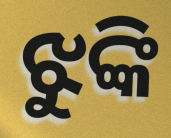
ଝୁଙ୍କି